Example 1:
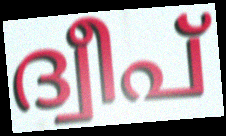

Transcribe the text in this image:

ദ്വീപ്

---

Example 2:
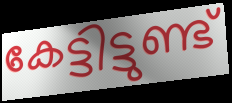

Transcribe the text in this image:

കേട്ടിട്ടുണ്ട്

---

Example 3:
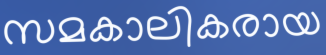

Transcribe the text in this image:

സമകാലികരായ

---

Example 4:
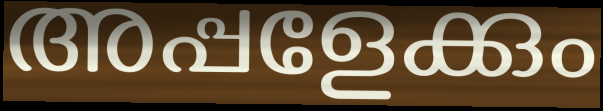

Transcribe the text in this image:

അപ്പളേക്കും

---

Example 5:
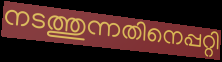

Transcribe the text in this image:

നടത്തുന്നതിനെപ്പറ്റി